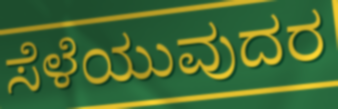
ಸೆಳೆಯುವುದರ